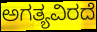
ಅಗತ್ಯವಿರದೆ